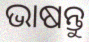
ଭାଷନ୍ତୁ